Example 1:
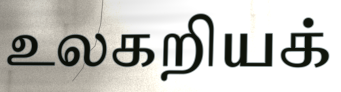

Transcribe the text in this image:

உலகறியக்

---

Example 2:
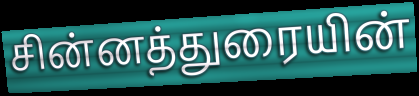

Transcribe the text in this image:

சின்னத்துரையின்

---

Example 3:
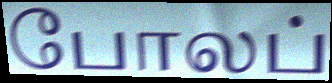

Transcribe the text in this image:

போலப்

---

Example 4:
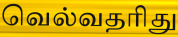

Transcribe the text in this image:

வெல்வதரிது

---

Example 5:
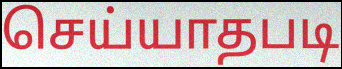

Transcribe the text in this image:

செய்யாதபடி